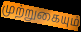
முற்றுகையும்